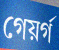
গেয়ৰ্গ